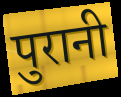
पुरानी